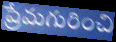
ప్రేమగురించి